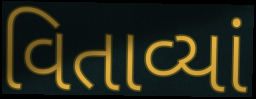
વિતાવ્યાં